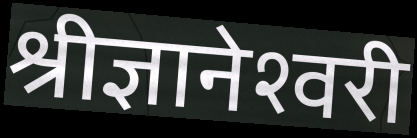
श्रीज्ञानेश्वरी